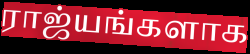
ராஜ்யங்களாக